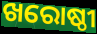
ଖରୋଷ୍ଠୀ